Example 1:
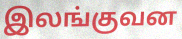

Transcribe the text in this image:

இலங்குவன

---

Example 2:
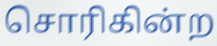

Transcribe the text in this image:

சொரிகின்ற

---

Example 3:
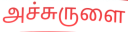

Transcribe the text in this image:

அச்சுருளை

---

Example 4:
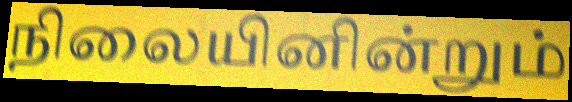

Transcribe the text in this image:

நிலையினின்றும்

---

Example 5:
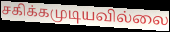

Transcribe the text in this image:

சகிக்கமுடியவில்லை